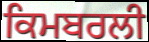
ਕਿਮਬਰਲੀ